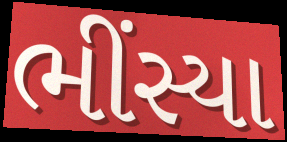
ભીંસ્યા